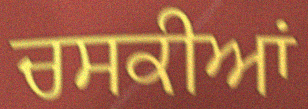
ਚਸਕੀਆਂ